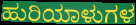
ಹುರಿಯಾಳುಗಳ